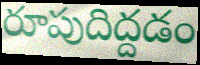
రూపుదిద్దడం